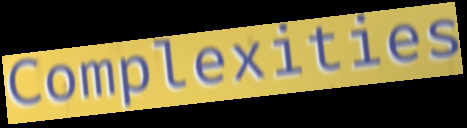
Complexities